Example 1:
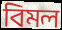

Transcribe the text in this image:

বিমল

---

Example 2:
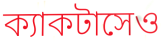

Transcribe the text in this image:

ক্যাকটাসেও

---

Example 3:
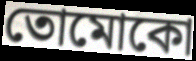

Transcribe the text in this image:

তোমোকো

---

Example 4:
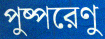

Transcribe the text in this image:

পুষ্পরেণু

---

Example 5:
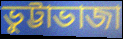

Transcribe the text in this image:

ভুট্টাভাজা